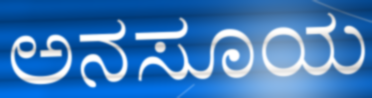
ಅನಸೂಯ